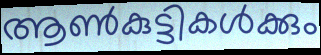
ആൺകുട്ടികൾക്കും